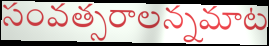
సంవత్సరాలన్నమాట